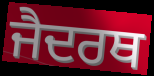
ਜੈਦਰਥ